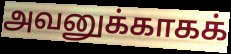
அவனுக்காகக்